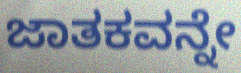
ಜಾತಕವನ್ನೇ